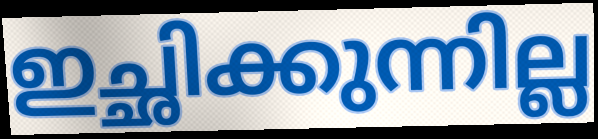
ഇച്ഛിക്കുന്നില്ല